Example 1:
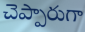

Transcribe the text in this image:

చెప్పారుగా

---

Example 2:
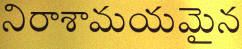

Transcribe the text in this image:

నిరాశామయమైన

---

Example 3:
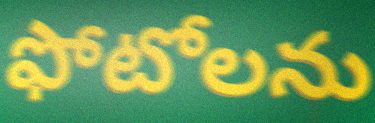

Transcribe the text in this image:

ఫోటోలను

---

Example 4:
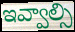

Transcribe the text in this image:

ఇవ్వాల్సి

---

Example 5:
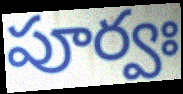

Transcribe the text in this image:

పూర్వః